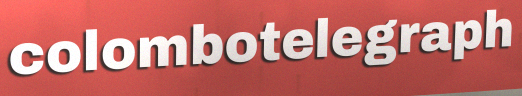
colombotelegraph